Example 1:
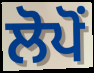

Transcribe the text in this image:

ਲੋਪੋਂ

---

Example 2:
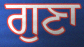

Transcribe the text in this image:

ਗੁਣਾ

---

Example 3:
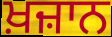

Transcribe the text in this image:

ਖ਼ਜ਼ਾਨ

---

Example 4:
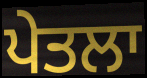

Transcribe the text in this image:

ਪੇਤਲਾ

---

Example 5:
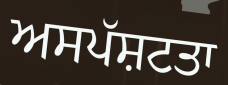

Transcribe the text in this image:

ਅਸਪੱਸ਼ਟਤਾ